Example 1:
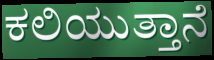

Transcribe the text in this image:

ಕಲಿಯುತ್ತಾನೆ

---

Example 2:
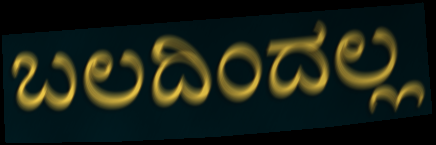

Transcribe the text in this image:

ಬಲದಿಂದಲ್ಲ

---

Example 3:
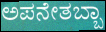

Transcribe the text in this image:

ಅಪನೇತಬ್ಬಾ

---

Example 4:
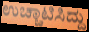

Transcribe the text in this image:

ಉಚ್ಚಾಟಿಸಿದ್ದು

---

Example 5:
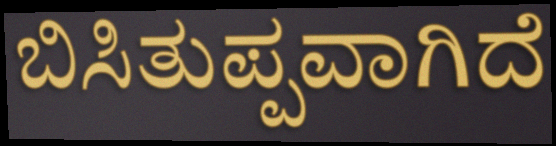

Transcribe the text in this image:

ಬಿಸಿತುಪ್ಪವಾಗಿದೆ